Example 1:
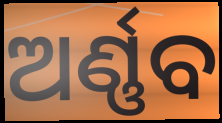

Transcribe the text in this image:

ଅର୍ଣ୍ଣବ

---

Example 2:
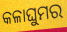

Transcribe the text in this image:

କଳାଘୁମର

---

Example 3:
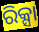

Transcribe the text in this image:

ରିକ୍ସା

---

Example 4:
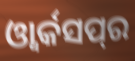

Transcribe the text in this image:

ଓ୍ୱାର୍କସପ୍‌ର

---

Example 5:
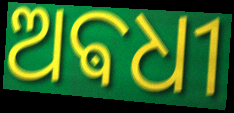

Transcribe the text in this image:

ଅଵଧୀ